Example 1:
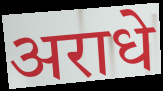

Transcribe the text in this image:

अराधे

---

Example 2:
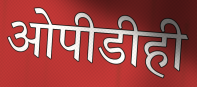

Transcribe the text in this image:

ओपीडीही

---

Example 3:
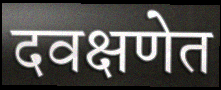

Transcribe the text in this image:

दवक्षणेत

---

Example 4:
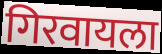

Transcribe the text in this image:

गिरवायला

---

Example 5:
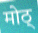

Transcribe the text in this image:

मोठ्